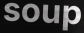
soup